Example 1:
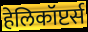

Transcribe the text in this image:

हेलिकॉप्टर्स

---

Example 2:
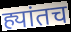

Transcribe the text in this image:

ह्यांतच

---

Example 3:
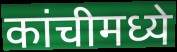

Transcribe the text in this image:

कांचीमध्ये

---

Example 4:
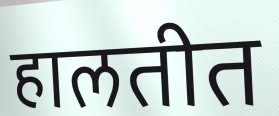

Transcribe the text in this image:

हालतीत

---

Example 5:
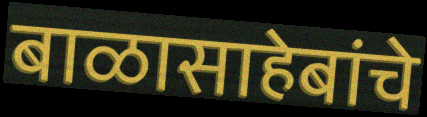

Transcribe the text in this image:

बाळासाहेबांचे